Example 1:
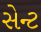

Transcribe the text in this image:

સેન્ટ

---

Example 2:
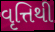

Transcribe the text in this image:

વૃત્તિથી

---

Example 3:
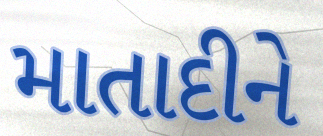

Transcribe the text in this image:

માતાદીને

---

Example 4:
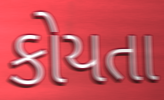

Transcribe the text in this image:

કોયતા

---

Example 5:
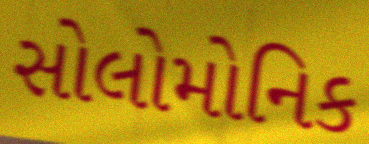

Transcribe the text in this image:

સોલોમોનિક